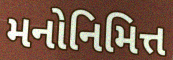
મનોનિમિત્ત